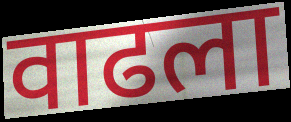
वाढला